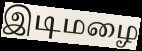
இடிமழை